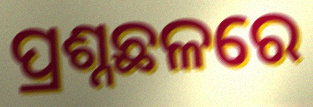
ପ୍ରଶ୍ନଛଳରେ